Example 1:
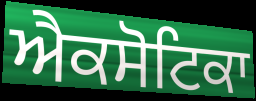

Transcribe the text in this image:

ਐਕਸੋਟਿਕਾ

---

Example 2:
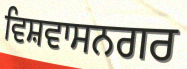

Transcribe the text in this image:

ਵਿਸ਼ਵਾਸਨਗਰ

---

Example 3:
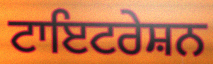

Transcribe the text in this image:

ਟਾਇਟਰੇਸ਼ਨ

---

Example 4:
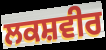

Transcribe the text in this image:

ਲਕਸ਼ਵੀਰ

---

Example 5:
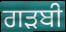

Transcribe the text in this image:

ਗੜਬੀ